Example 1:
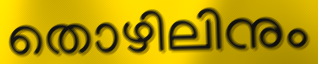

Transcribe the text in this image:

തൊഴിലിനും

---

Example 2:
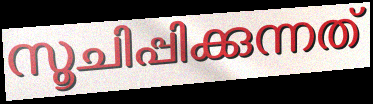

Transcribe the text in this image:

സൂചിപ്പിക്കുന്നത്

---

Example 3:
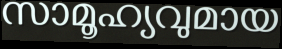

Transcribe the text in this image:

സാമൂഹ്യവുമായ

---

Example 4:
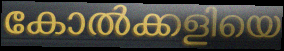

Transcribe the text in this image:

കോൽക്കളിയെ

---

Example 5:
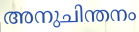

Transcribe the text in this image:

അനുചിന്തനം